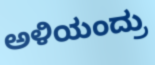
ಅಳಿಯಂದ್ರು